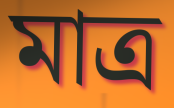
মাত্র